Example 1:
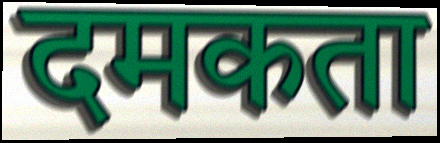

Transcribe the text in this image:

दमकता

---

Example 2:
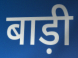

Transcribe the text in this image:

बाड़ी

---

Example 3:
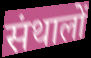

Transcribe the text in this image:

संथालों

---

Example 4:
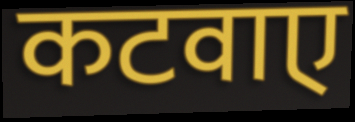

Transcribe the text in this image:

कटवाए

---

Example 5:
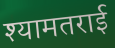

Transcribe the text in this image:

श्यामतराई